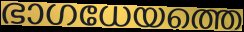
ഭാഗധേയത്തെ